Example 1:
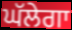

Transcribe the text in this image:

ਘੱਲੇਗਾ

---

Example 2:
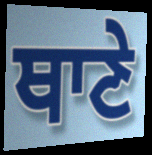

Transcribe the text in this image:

ਥਾਣੇ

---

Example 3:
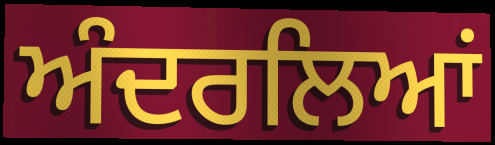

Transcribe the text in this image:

ਅੰਦਰਲਿਆਂ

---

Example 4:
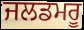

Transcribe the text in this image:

ਜਲਡਮਰੂ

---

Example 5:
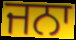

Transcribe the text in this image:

ਜਨਾ